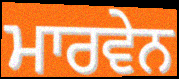
ਮਾਰਵੇਨ